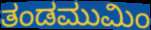
ತಂಡಮುಮಿಂ